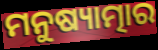
ମନୁଷ୍ୟାତ୍ମାର